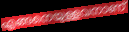
എങ്ങനെയുള്ളവനാണ്